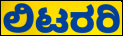
ಲಿಟರರಿ